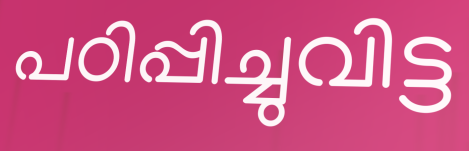
പഠിപ്പിച്ചുവിട്ട